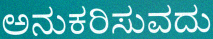
ಅನುಕರಿಸುವದು